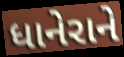
ધાનેરાને